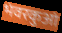
भंवरकुआं